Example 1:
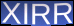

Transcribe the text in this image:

XIRR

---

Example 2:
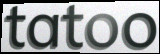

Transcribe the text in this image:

tatoo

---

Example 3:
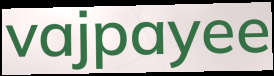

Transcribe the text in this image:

vajpayee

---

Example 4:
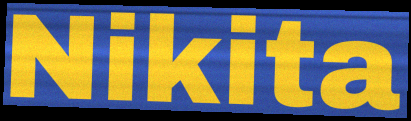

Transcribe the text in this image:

Nikita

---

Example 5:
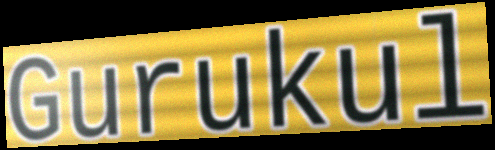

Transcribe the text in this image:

Gurukul